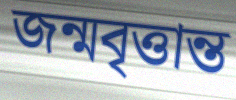
জন্মবৃত্তান্ত